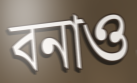
বনাও